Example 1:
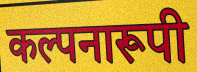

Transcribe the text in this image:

कल्पनारूपी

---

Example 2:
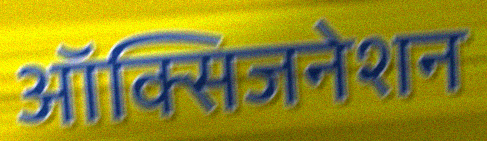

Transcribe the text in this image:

ऑक्सिजनेशन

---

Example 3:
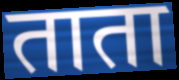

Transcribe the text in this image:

ताता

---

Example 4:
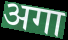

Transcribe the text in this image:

अगा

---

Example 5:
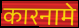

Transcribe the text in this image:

कारनामे